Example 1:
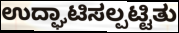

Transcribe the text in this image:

ಉದ್ಘಾಟಿಸಲ್ಪಟ್ಟಿತು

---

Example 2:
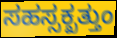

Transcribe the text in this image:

ಸಹಸ್ಸಕ್ಖತ್ತುಂ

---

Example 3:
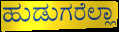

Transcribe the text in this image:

ಹುಡುಗರೆಲ್ಲಾ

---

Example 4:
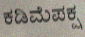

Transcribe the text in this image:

ಕಡಿಮೆಪಕ್ಷ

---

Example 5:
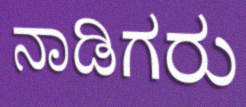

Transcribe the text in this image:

ನಾಡಿಗರು